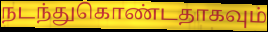
நடந்துகொண்டதாகவும்